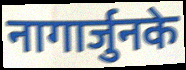
नागार्जुनके